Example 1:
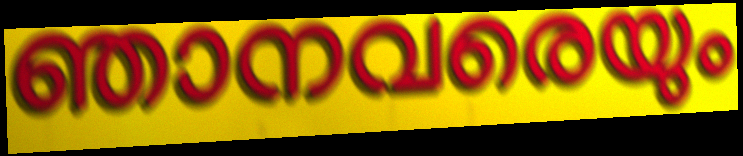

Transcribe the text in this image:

ഞാനവരെയും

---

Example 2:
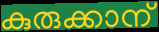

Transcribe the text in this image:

കുരുക്കാന്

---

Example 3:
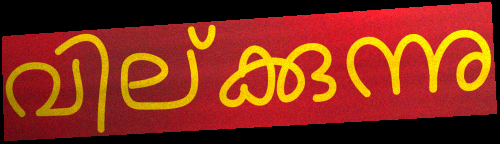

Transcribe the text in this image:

വില്ക്കുന്നു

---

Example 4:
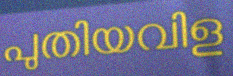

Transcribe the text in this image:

പുതിയവിള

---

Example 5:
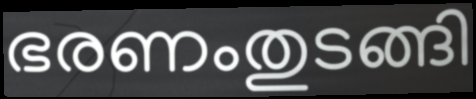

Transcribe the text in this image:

ഭരണംതുടങ്ങി